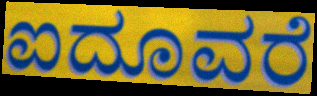
ಐದೂವರೆ